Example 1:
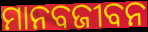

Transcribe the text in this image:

ମାନବଜୀବନ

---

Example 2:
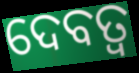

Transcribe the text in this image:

ଦେବତ୍ୱ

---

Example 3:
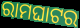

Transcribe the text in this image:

ରାମଘାଟର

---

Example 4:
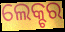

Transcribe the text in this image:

ଲେକ୍ଚର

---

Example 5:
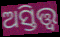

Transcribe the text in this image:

ଅସ୍ତିତ୍ତ୍ବ